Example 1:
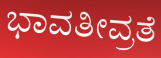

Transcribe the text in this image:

ಭಾವತೀವ್ರತೆ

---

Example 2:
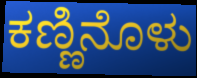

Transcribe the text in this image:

ಕಣ್ಣಿನೊಳು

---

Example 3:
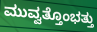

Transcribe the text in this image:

ಮುವ್ವತ್ತೊಂಭತ್ತು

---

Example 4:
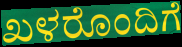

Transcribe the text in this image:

ಖಳರೊಂದಿಗೆ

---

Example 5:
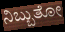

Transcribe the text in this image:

ನಿಬ್ಬುತೋ